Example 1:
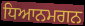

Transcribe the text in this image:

ਧਿਆਨਮਗਨ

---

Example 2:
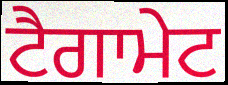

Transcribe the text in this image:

ਟੈਗਾਮੇਟ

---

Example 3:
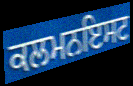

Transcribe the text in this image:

ਕਲਮਨਇਸਟ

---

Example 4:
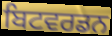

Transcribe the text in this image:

ਬਿਟਵਰਡਨ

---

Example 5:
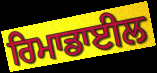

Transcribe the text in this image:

ਰਿਮਾਡਾਈਲ